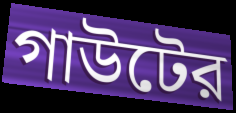
গাউটের